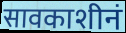
सावकाशीनं